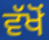
ਵੱਖੋਂ